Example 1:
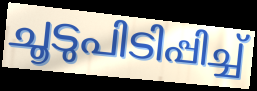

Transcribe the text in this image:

ചൂടുപിടിപ്പിച്ച്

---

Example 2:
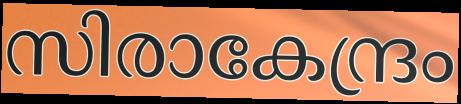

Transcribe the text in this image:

സിരാകേന്ദ്രം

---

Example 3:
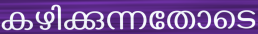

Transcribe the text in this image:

കഴിക്കുന്നതോടെ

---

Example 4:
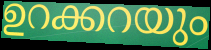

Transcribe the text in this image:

ഉറക്കറയും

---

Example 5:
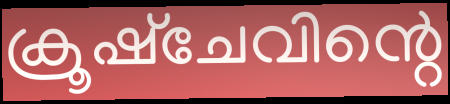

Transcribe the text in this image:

ക്രൂഷ്ചേവിന്റെ